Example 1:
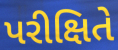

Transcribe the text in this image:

પરીક્ષિતે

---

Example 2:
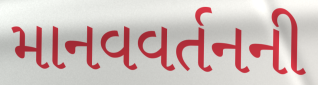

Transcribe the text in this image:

માનવવર્તનની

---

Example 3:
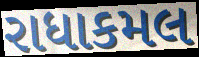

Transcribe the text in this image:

રાધાકમલ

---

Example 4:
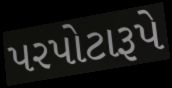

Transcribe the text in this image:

પરપોટારૂપે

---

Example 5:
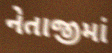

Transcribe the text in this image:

નેતાજીમાં